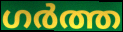
ഗർത്ത